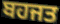
ਬਹਜਤ